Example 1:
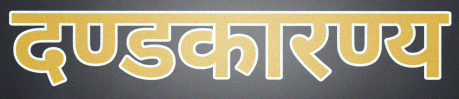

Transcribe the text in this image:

दण्डकारण्य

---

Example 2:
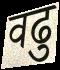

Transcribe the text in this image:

वढु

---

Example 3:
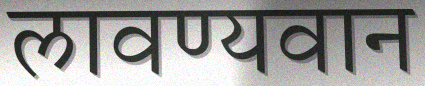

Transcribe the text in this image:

लावण्यवान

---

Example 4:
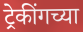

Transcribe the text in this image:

ट्रेकींगच्या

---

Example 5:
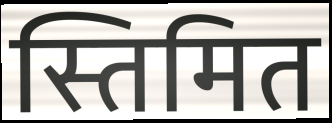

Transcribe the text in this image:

स्तिमित